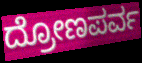
ದ್ರೋಣಪರ್ವ